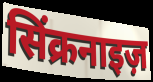
सिंक्रनाइज़